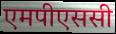
एमपीएससी